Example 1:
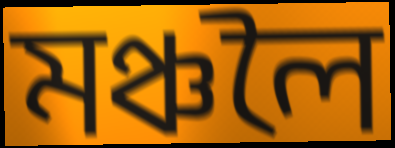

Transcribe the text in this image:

মঞ্চলৈ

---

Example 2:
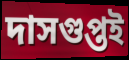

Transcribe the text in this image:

দাসগুপ্তই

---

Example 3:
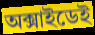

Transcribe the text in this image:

অক্সাইডেই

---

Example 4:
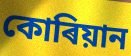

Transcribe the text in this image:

কোৰিয়ান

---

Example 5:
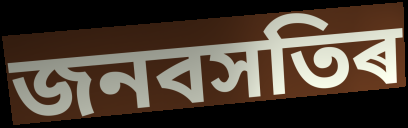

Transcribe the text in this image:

জনবসতিৰ